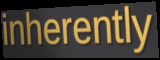
inherently